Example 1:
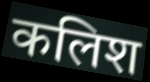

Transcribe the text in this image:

कलिश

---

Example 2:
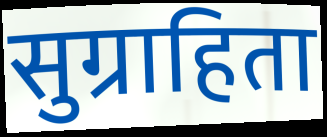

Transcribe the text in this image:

सुग्राहिता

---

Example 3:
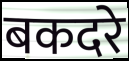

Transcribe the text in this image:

बकदरे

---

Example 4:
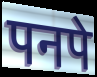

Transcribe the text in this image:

पनपे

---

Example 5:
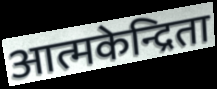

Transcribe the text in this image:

आत्मकेन्द्रिता